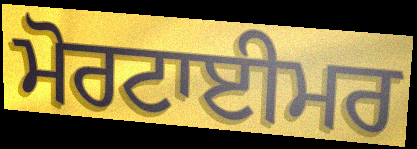
ਮੋਰਟਾਈਮਰ